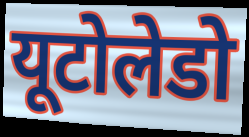
यूटोलेडो